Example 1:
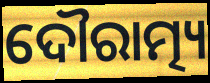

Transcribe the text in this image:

ଦୌରାତ୍ମ୍ୟ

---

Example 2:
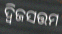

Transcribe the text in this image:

ଦ୍ୱିଜସତ୍ତମ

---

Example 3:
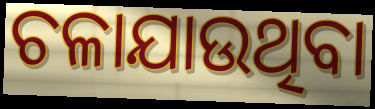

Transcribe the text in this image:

ଚଳାଯାଉଥିବା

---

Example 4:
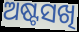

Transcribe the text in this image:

ଅଷ୍ଟସଖି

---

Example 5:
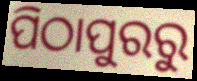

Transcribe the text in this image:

ପିଠାପୁରରୁ